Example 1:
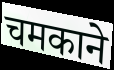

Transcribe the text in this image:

चमकाने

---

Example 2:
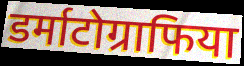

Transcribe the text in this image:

डर्माटोग्राफिया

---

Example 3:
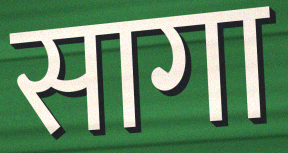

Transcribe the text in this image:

सागा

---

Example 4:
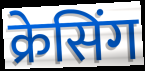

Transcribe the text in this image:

क्रेसिंग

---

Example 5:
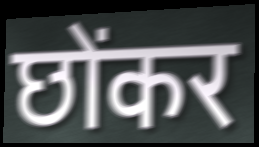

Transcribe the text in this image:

छोंकर